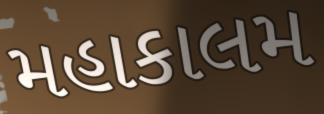
મહાકાલમ